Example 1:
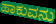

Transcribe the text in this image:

ಹಾಕುವನು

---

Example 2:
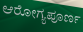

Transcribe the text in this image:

ಆರೋಗ್ಯಪೂರ್ಣ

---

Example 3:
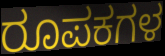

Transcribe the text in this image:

ರೂಪಕಗಳ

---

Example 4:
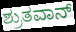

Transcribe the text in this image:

ಶ್ರುತವಾನ್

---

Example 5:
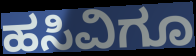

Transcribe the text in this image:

ಹಸಿವಿಗೂ